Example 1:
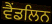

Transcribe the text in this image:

ਵੈਂਡਲਿਨ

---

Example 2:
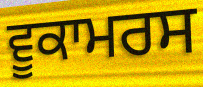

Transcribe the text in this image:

ਵੂਕਾਮਰਸ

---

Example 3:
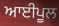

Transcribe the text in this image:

ਆਈਪੂਲ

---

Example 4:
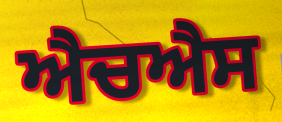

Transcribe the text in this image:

ਐਚਐਸ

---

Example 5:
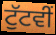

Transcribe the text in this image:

ਟੁੱਟਵੀਂ